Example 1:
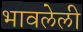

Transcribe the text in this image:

भावलेली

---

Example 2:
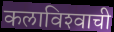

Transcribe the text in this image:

कलाविश्वाची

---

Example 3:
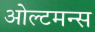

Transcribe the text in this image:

ओल्टमन्स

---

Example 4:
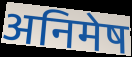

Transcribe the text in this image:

अनिमेष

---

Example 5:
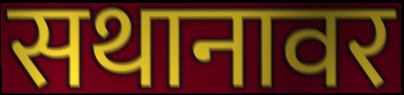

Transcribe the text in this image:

सथानावर